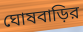
ঘোষবাড়ির